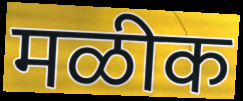
मळीक